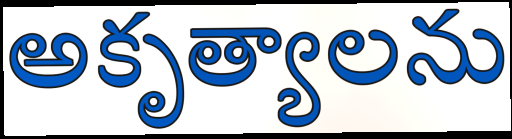
అకృత్యాలను